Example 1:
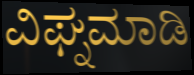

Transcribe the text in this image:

ವಿಘ್ನಮಾಡಿ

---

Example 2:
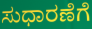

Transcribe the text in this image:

ಸುಧಾರಣೆಗೆ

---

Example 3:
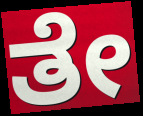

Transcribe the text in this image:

ತೇ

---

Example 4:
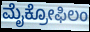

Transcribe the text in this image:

ಮೈಕ್ರೋಫಿಲಂ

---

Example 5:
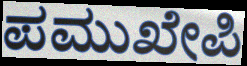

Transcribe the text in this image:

ಪಮುಖೇಪಿ